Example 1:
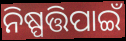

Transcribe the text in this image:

ନିଷ୍ପତ୍ତିପାଇଁ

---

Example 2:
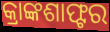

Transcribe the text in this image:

କ୍ରାଙ୍କଶାଫ୍ଟର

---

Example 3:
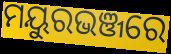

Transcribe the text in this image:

ମୟୁରଭଞ୍ଜରେ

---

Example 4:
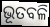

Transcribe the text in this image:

ଭୂତବଳି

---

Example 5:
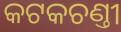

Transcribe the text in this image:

କଟକଚଣ୍ତୀ